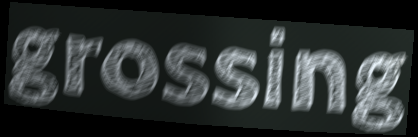
grossing